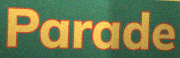
Parade